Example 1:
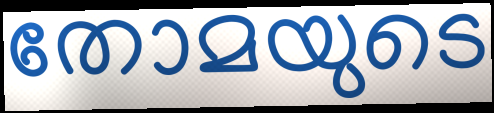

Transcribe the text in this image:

തോമയുടെ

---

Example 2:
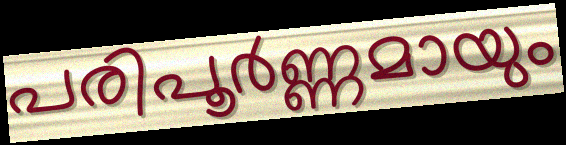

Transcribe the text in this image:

പരിപൂർണ്ണമായും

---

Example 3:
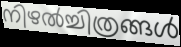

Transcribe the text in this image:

നിഴൽച്ചിത്രങ്ങൾ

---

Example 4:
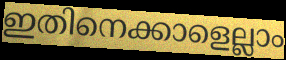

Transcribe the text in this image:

ഇതിനെക്കാളെല്ലാം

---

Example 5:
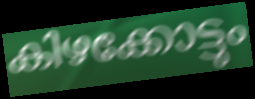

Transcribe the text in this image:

കിഴക്കോട്ടും